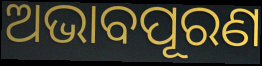
ଅଭାବପୂରଣ